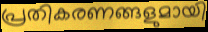
പ്രതികരണങ്ങളുമായി